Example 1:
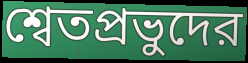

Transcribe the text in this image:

শ্বেতপ্রভুদের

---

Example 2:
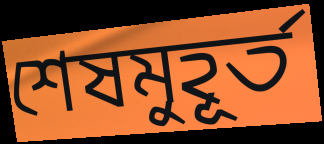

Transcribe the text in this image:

শেষমুহূর্ত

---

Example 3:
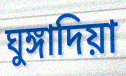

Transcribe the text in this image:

ঘুঙ্গাদিয়া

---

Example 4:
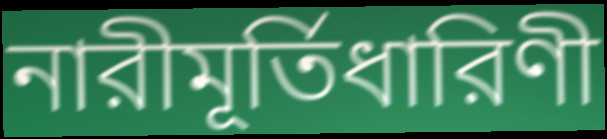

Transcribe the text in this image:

নারীমূর্তিধারিণী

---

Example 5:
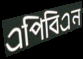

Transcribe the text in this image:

এপিবিএন